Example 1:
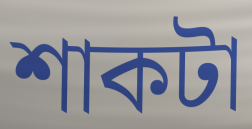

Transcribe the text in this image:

শাকটা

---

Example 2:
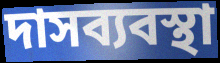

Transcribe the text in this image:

দাসব্যবস্থা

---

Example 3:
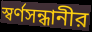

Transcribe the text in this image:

স্বর্ণসন্ধানীর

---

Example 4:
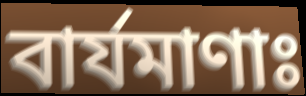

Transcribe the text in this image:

বার্যমাণাঃ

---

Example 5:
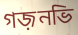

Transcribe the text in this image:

গজ়নভি